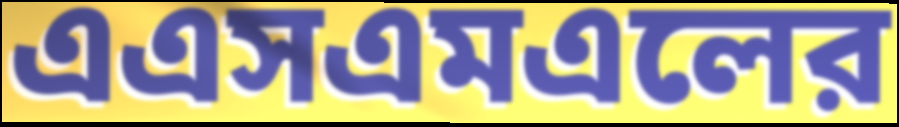
এএসএমএলের